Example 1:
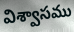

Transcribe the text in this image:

విశ్వాసము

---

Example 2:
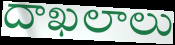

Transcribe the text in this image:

దాఖలాలు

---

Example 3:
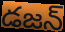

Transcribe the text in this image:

డజన్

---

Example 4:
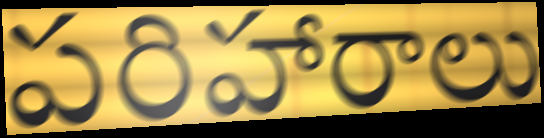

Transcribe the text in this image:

పరిహారాలు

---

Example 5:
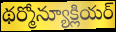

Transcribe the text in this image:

థర్మోన్యూక్లియర్